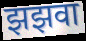
झझवा